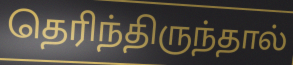
தெரிந்திருந்தால்